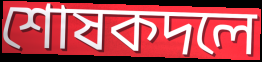
শোষকদলে